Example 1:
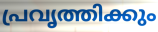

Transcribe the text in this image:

പ്രവൃത്തിക്കും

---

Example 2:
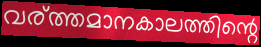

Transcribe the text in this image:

വര്ത്തമാനകാലത്തിന്റെ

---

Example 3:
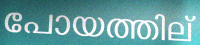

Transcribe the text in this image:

പോയത്തില്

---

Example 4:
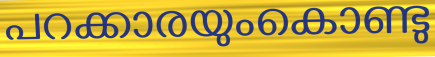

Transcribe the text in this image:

പറക്കാരയുംകൊണ്ടു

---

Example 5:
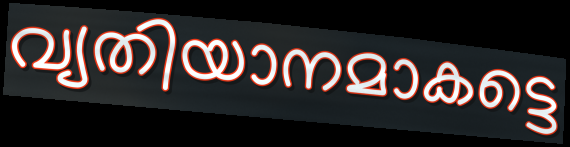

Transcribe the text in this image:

വ്യതിയാനമാകട്ടെ